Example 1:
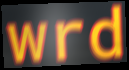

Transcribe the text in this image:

wrd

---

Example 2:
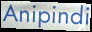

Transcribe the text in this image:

Anipindi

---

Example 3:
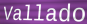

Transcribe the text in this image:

Vallado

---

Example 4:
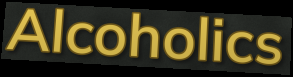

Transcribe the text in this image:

Alcoholics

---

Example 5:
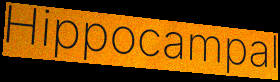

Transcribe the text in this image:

Hippocampal